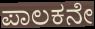
ಪಾಲಕನೇ